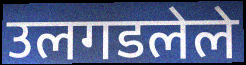
उलगडलेले